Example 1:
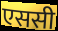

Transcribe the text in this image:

एससी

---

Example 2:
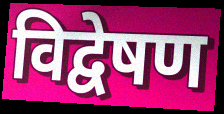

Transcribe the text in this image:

विद्वेषण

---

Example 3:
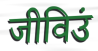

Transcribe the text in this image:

जीविउं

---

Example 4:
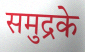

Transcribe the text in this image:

समुद्रके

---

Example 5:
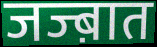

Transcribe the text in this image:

जज्ब़ात